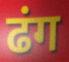
ढंग